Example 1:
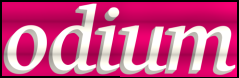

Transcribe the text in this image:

odium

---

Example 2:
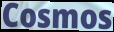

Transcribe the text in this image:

Cosmos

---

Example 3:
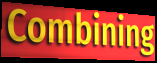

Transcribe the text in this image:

Combining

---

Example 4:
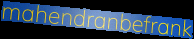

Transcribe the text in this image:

mahendranbefrank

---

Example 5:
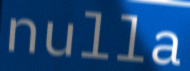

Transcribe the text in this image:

nulla